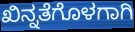
ಖಿನ್ನತೆಗೊಳಗಾಗಿ